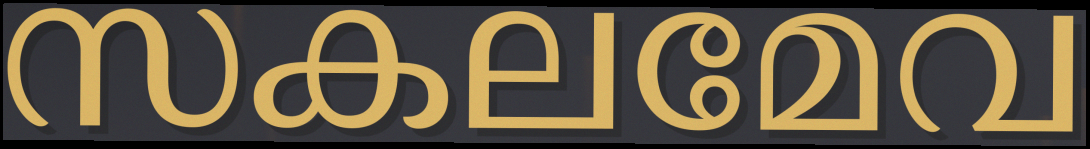
സകലമേവ